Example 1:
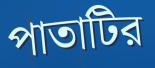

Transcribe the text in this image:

পাতাটির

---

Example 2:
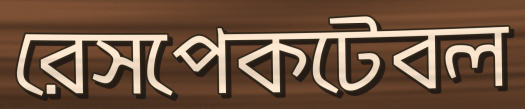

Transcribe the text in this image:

রেসপেকটেবল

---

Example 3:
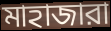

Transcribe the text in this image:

মাহাজারা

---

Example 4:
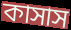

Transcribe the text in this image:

কাসাস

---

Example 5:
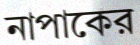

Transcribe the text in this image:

নাপাকের